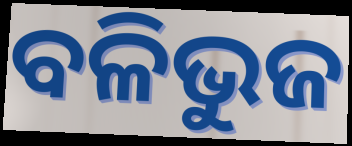
ବଳିଭୁଜ